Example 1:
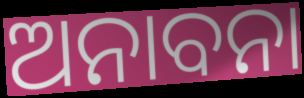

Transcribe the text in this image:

ଅନାବନା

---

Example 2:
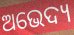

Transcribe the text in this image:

ଅଭେଦ୍ୟ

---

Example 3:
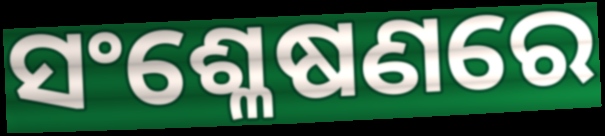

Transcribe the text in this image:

ସଂଶ୍ଳେଷଣରେ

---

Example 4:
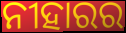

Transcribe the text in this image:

ନୀହାରର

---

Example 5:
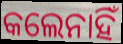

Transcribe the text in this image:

କଲେନାହିଁ